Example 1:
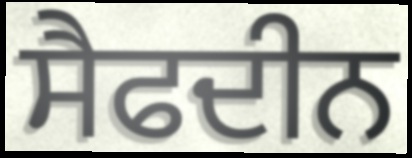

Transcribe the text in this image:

ਸੈਫਦੀਨ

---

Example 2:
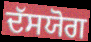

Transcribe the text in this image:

ਦੱਸਯੋਗ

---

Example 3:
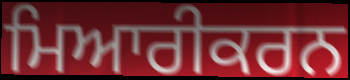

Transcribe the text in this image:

ਮਿਆਰੀਕਰਨ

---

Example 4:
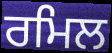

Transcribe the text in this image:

ਰਮਿਲ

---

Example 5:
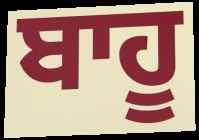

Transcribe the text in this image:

ਬਾਹੂ